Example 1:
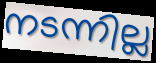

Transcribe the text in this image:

നടന്നില്ല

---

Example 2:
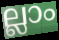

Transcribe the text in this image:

ല്ലാം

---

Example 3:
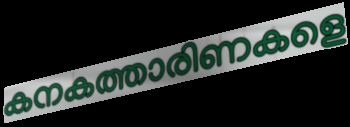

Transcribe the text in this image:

കനകത്താരിണകളെ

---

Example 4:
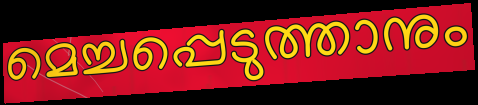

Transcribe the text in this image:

മെച്ചപ്പെടുത്താനും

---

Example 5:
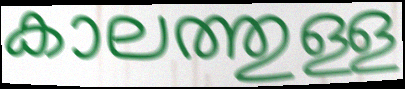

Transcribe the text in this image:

കാലത്തുള്ള